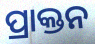
ପ୍ରାକ୍ତନ